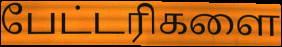
பேட்டரிகளை